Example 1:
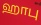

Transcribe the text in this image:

ஹாபு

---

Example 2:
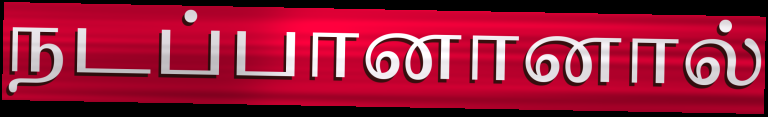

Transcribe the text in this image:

நடப்பானானால்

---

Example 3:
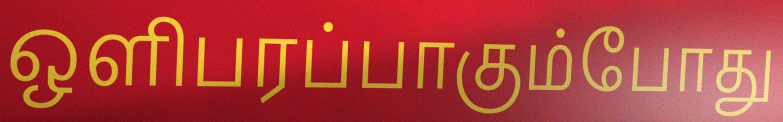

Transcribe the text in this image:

ஒளிபரப்பாகும்போது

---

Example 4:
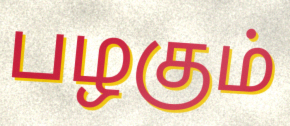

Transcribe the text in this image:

பழகும்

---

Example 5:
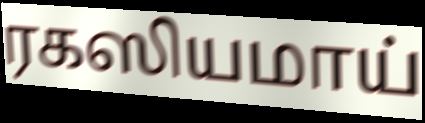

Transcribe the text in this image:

ரகஸியமாய்